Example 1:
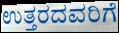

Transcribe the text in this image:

ಉತ್ತರದವರಿಗೆ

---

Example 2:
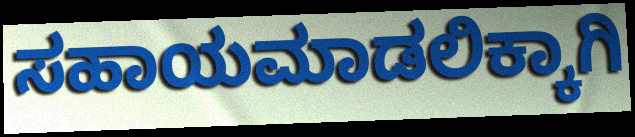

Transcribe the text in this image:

ಸಹಾಯಮಾಡಲಿಕ್ಕಾಗಿ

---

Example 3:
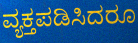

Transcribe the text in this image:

ವ್ಯಕ್ತಪಡಿಸಿದರೂ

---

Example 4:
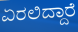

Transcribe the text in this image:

ಏರಲಿದ್ದಾರೆ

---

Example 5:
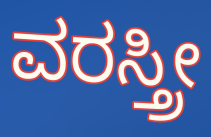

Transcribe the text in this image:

ವರಸ್ತ್ರೀ